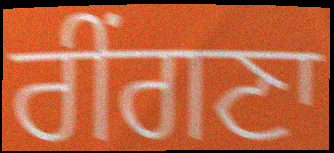
ਰੀਂਗਣਾ